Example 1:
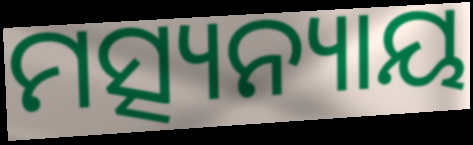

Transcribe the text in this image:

ମତ୍ସ୍ୟନ୍ୟାୟ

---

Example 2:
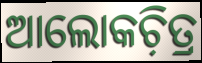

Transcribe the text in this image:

ଆଲୋକଚ଼ିତ୍ର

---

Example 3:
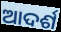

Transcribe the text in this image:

ଆଦର୍ଶ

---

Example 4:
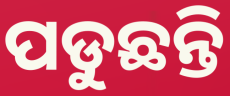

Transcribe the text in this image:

ପଡୁଛନ୍ତି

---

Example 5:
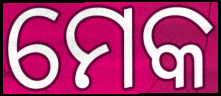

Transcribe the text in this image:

ମେକ